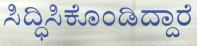
ಸಿದ್ಧಿಸಿಕೊಂಡಿದ್ದಾರೆ